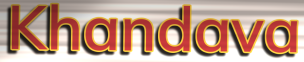
Khandava